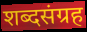
शब्दसंग्रह